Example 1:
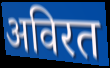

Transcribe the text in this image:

अविरत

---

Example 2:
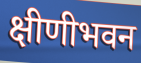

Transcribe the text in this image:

क्षीणीभवन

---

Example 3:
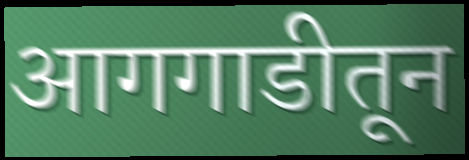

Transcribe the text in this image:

आगगाडीतून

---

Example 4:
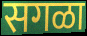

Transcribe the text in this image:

सगळा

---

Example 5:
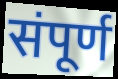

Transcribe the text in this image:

संपूर्ण